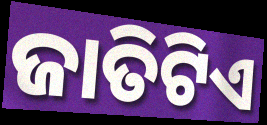
ଜାତିଟିଏ